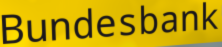
Bundesbank